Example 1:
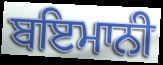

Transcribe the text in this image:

ਬਇਮਾਨੀ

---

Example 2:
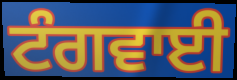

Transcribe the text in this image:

ਟੰਗਵਾਈ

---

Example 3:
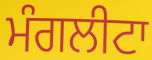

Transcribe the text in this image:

ਮੰਗਲੀਟਾ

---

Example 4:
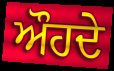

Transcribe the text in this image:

ਔਹਦੇ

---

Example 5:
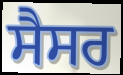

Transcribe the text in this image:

ਸੈਸਰ